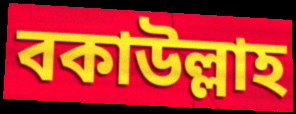
বকাউল্লাহ